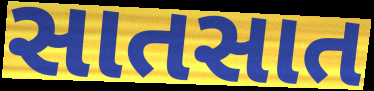
સાતસાત